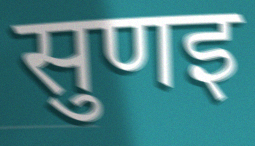
सुणइ